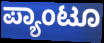
ಪ್ಯಾಂಟೂ